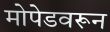
मोपेडवरून